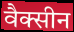
वैक्‍सीन